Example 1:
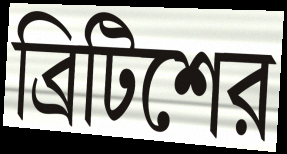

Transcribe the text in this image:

ব্রিটিশের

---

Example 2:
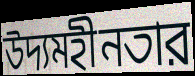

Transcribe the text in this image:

উদ্যমহীনতার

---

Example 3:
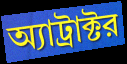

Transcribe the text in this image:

অ্যাট্রাক্টর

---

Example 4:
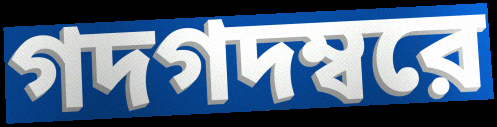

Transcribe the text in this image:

গদগদম্বরে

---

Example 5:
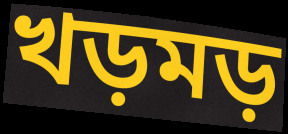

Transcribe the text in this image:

খড়মড়